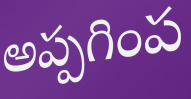
అప్పగింప